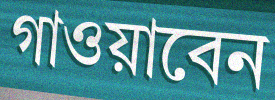
গাওয়াবেন